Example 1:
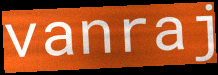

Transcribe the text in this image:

vanraj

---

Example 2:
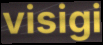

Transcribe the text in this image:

visigi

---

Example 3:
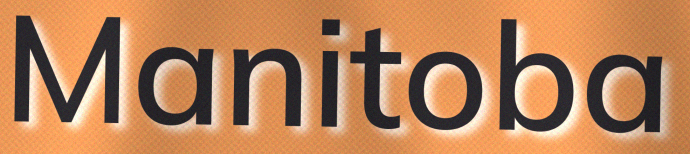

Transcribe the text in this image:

Manitoba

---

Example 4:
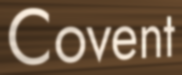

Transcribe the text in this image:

Covent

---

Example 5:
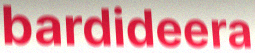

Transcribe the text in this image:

bardideera